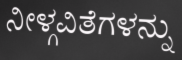
ನೀಳ್ಗವಿತೆಗಳನ್ನು